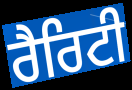
ਰੈਰਿਟੀ